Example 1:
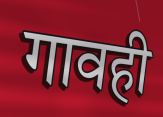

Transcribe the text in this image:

गावही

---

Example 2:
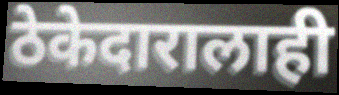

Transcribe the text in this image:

ठेकेदारालाही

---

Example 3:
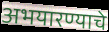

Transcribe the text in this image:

अभयारण्याचे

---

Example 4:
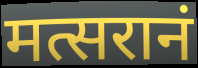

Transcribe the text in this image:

मत्सरानं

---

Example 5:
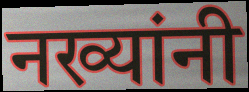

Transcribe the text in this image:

नख्यांनी